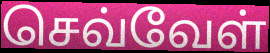
செவ்வேள்